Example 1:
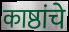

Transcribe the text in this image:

काष्ठांचे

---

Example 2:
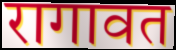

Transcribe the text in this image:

रागावत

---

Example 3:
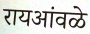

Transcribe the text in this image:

रायआंवळे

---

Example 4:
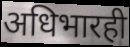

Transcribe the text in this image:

अधिभारही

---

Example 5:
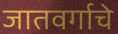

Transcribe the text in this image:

जातवर्गाचे